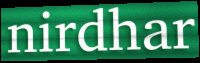
nirdhar